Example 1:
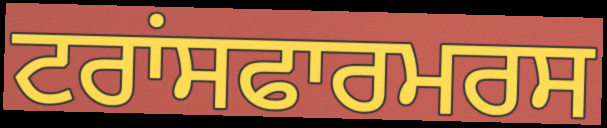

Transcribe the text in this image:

ਟਰਾਂਸਫਾਰਮਰਸ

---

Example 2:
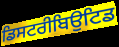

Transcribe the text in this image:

ਡਿਸਟਰੀਬਿਉਟਿਡ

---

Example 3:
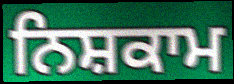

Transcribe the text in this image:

ਨਿਸ਼ਕਾਮ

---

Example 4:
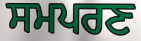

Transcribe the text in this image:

ਸਮਪਰਣ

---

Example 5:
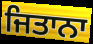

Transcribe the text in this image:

ਜਿਤਾਨਾ